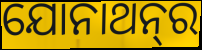
ଯୋନାଥନ୍‍ର